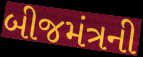
બીજમંત્રની